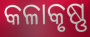
କଳାକୃଷ୍ଣ